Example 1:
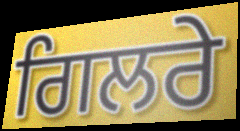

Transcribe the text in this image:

ਗਿਲਰੇ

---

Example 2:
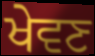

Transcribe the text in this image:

ਖੇਵਣ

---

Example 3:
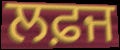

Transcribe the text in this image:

ਲਫ਼ਜ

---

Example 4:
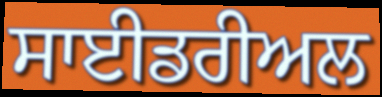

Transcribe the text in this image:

ਸਾਈਡਰੀਅਲ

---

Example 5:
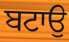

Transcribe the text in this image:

ਬਟਾਉ